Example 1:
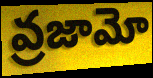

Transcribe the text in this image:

వ్రజామో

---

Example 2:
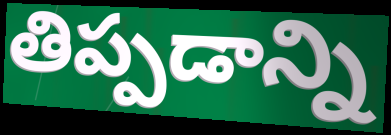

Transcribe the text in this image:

తిప్పడాన్ని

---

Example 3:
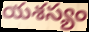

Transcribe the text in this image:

యశస్యం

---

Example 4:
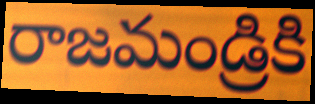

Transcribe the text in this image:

రాజమండ్రికి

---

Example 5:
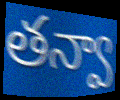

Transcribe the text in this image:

తన్వా